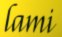
lami